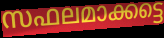
സഫലമാക്കട്ടെ